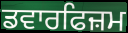
ਡਵਾਰਫਿਜ਼ਮ